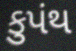
કુપંથ